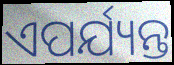
ଏପର୍ଯ୍ୟନ୍ତ